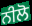
ਨੀਲੋ